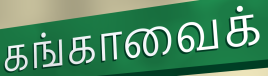
கங்காவைக்